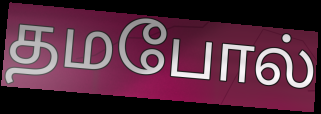
தமபோல்